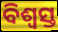
ବିଶ୍ଵସ୍ତ